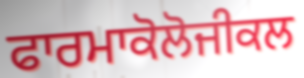
ਫਾਰਮਾਕੋਲੋਜੀਕਲ